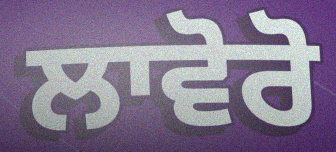
ਲਾਵੋਰੋ